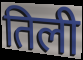
तिली